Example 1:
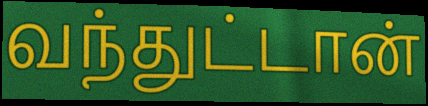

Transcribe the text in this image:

வந்துட்டான்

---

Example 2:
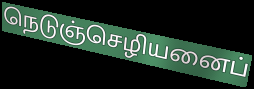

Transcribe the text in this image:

நெடுஞ்செழியனைப்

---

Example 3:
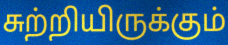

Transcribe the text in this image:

சுற்றியிருக்கும்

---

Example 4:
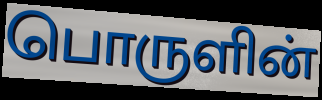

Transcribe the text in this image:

பொருளின்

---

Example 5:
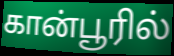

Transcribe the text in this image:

கான்பூரில்